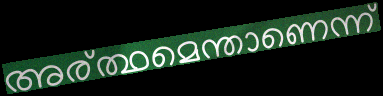
അര്ത്ഥമെന്താണെന്ന്